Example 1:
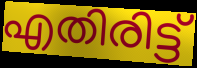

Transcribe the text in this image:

എതിരിട്ട്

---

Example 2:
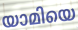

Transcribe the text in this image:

യാമിയെ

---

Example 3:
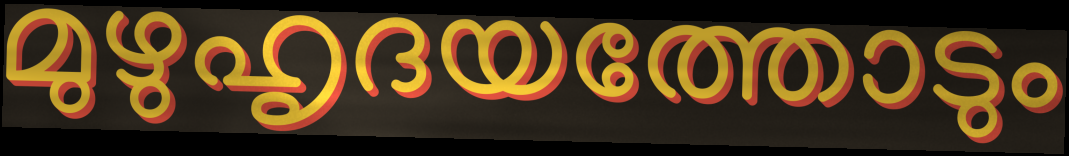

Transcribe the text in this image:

മുഴുഹൃദയത്തോടും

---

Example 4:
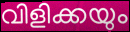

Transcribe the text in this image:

വിളിക്കയും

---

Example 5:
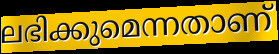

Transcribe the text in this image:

ലഭിക്കുമെന്നതാണ്